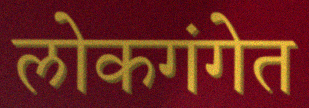
लोकगंगेत